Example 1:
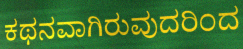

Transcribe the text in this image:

ಕಥನವಾಗಿರುವುದರಿಂದ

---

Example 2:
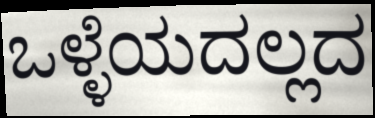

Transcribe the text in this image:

ಒಳ್ಳೆಯದಲ್ಲದ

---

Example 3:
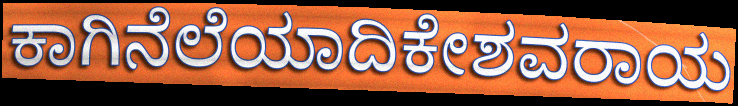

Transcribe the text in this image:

ಕಾಗಿನೆಲೆಯಾದಿಕೇಶವರಾಯ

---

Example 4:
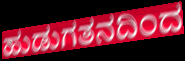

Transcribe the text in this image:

ಹುಡುಗತನದಿಂದ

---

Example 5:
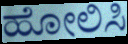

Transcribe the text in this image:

ಹೋಲಿಸಿ